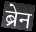
ब्रेन